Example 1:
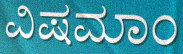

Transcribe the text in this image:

ವಿಷಮಾಂ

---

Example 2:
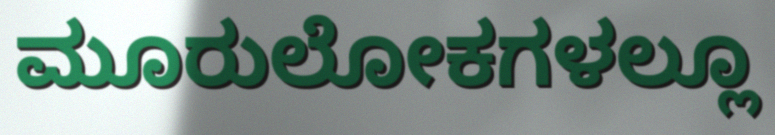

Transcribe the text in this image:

ಮೂರುಲೋಕಗಳಲ್ಲೂ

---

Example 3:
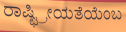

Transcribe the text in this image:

ರಾಷ್ಟ್ರೀಯತೆಯೆಂಬ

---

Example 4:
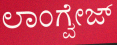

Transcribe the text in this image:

ಲಾಂಗ್ವೇಜ್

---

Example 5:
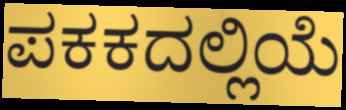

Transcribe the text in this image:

ಪಕಕದಲ್ಲಿಯೆ